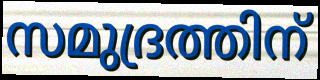
സമുദ്രത്തിന്